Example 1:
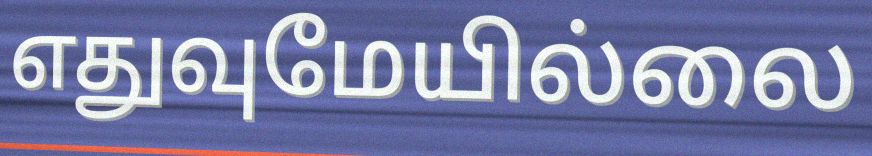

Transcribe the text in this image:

எதுவுமேயில்லை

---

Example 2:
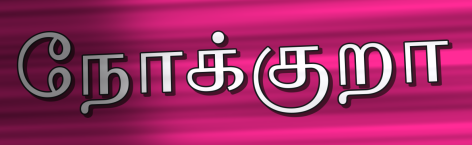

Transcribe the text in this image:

நோக்குறா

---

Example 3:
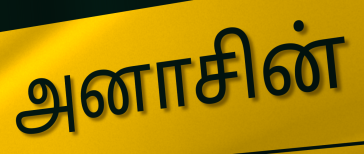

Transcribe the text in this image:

அனாசின்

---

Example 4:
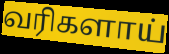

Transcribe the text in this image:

வரிகளாய்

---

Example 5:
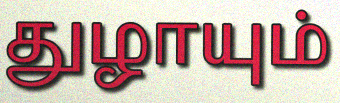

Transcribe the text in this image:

துழாயும்